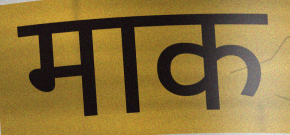
माक